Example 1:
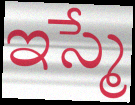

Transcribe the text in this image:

ఇస్మే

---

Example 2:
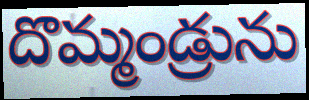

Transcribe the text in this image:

దొమ్మండ్రును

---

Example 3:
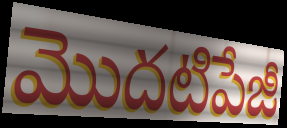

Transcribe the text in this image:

మొదటిపేజీ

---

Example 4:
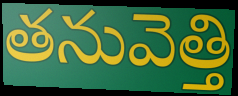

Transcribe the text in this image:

తనువెత్తి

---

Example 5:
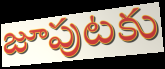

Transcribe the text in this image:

జూపుటకు